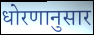
धोरणानुसार